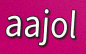
aajol